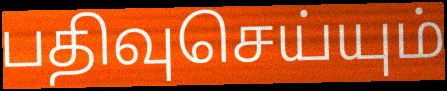
பதிவுசெய்யும்